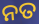
ନତ